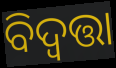
ବିଦ୍ୱତ୍ତା